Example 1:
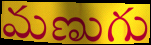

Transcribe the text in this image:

మణుగు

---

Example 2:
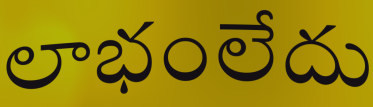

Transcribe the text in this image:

లాభంలేదు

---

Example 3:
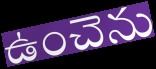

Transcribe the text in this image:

ఉంచెను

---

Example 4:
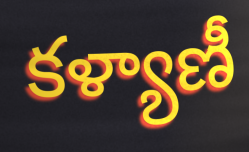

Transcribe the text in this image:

కళ్యాణీ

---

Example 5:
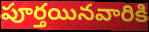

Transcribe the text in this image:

పూర్తయినవారికి